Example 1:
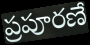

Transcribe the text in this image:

ప్రపూరణే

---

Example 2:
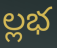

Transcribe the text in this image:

ల్లభ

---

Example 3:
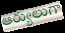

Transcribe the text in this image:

ఆర్యులుగా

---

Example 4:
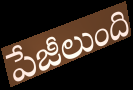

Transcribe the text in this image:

పేజీలుంది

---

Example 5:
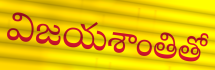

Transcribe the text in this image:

విజయశాంతితో